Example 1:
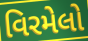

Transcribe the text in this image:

વિરમેલો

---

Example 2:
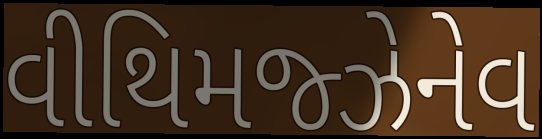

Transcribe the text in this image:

વીથિમજ્ઝેનેવ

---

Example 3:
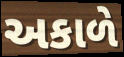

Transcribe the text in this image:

અકાળે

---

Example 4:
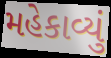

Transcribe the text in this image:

મહેકાવ્યું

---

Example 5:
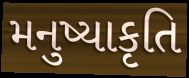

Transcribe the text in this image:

મનુષ્યાકૃતિ